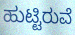
ಹುಟ್ಟಿರುವೆ